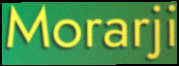
Morarji